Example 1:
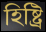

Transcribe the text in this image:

হিষ্ট্রি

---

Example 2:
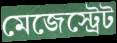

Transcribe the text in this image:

মেজেস্ট্রেট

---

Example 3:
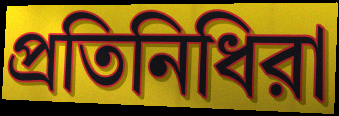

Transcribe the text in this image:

প্রতিনিধিরা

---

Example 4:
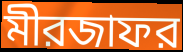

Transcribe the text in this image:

মীরজাফর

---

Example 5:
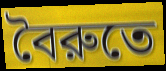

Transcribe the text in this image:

বৈরুতে